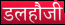
डलहौजी